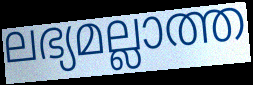
ലഭ്യമല്ലാത്ത